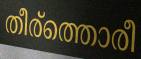
തീര്ത്തൊരീ